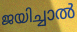
ജയിച്ചാൽ